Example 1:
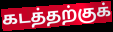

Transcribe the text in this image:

கடத்தற்குக்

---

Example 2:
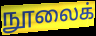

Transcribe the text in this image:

நூலைக்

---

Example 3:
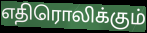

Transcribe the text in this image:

எதிரொலிக்கும்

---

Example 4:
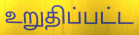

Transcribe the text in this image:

உறுதிப்பட்ட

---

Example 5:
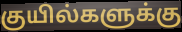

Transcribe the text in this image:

குயில்களுக்கு